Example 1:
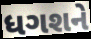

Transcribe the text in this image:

ધગશને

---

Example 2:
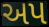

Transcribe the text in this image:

અપ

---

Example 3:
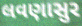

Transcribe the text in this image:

લવણાસુર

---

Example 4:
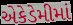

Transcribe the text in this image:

એકેડેમીમાં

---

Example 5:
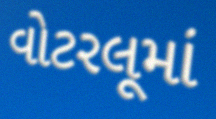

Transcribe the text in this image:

વોટરલૂમાં